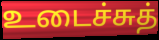
உடைச்சுத்